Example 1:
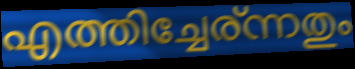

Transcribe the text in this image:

എത്തിച്ചേര്ന്നതും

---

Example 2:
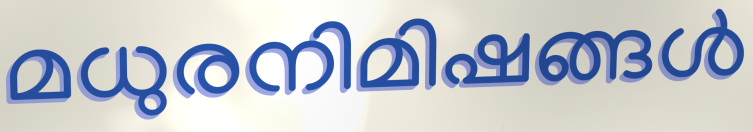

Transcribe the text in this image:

മധുരനിമിഷങ്ങൾ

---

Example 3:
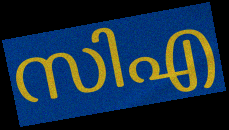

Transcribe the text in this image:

സിഎ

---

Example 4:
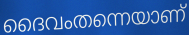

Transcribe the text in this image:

ദൈവംതന്നെയാണ്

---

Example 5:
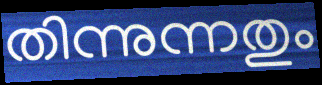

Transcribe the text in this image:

തിന്നുന്നതും